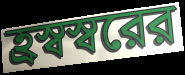
হ্রস্বস্বরের